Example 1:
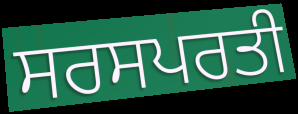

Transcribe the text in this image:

ਸਰਸਪਰਤੀ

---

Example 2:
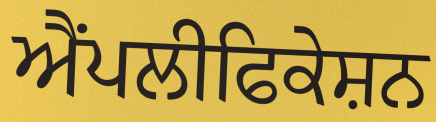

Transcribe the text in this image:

ਐਂਪਲੀਫਿਕੇਸ਼ਨ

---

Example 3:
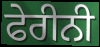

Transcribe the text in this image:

ਫੇਰੀਨੀ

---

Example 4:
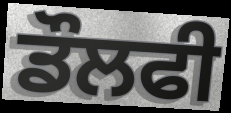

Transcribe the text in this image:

ਡੌਲਫੀ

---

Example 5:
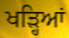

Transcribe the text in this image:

ਖੜ੍ਹਿਆਂ